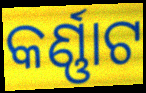
କର୍ଣ୍ଣାଟ